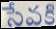
సేవకి